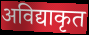
अविद्याकृत